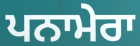
ਪਨਾਮੇਰਾ